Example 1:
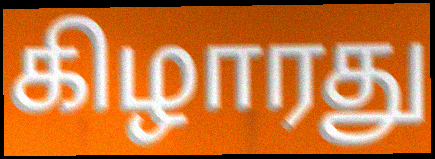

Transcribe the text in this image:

கிழாரது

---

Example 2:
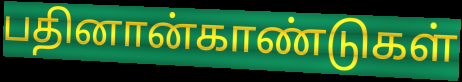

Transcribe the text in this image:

பதினான்காண்டுகள்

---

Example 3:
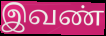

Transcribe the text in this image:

இவண்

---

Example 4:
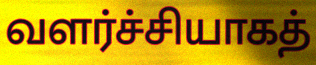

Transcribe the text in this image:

வளர்ச்சியாகத்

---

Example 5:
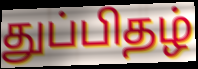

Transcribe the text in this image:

துப்பிதழ்